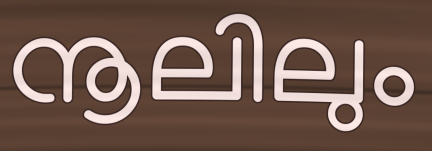
നൂലിലും